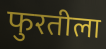
फुरतीला